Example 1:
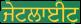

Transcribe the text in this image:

ਜੇਟਲਾਈਟ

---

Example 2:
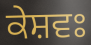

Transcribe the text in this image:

ਕੇਸ਼ਵਃ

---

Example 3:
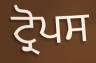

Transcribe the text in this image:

ਟ੍ਰੋਪਸ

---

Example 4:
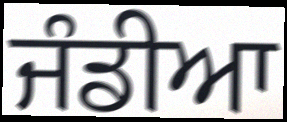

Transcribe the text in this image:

ਜੰਡੀਆ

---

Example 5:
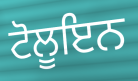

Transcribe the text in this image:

ਟੋਲੂਇਨ